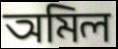
অমিল